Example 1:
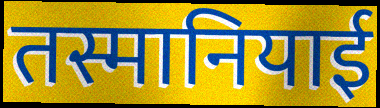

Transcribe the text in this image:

तस्मानियाई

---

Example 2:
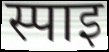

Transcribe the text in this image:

स्पाइ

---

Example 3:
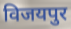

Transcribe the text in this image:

विजयपुर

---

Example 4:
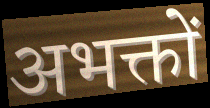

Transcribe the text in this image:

अभक्तों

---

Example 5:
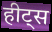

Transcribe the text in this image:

हीट्स